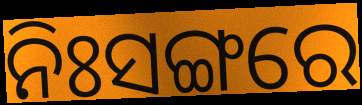
ନିଃସଙ୍ଗରେ